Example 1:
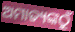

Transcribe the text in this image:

ଅମାତ୍ୟଙ୍କଠୁଁ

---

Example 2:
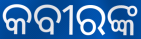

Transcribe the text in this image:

କବୀରଙ୍କ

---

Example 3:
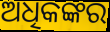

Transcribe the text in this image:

ଅଧିକଙ୍କର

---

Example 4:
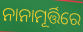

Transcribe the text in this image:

ନାନାମୂର୍ତ୍ତିରେ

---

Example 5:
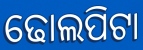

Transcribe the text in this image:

ଢୋଲପିଟା